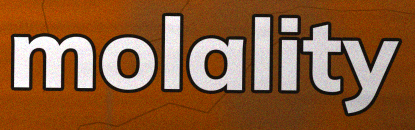
molality